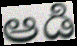
ఆడి